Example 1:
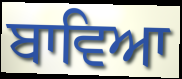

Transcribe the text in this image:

ਬਾਵਿਆ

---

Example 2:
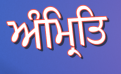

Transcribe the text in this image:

ਅੰਮ੍ਰਿਤਿ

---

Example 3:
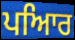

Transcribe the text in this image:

ਪਆਿਰ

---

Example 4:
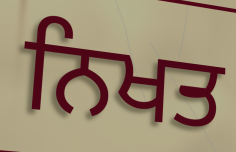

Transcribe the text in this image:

ਨਿਖਤ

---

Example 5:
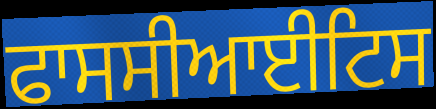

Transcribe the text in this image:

ਫਾਸਸੀਆਈਟਿਸ